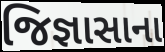
જિજ્ઞાસાના